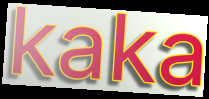
kaka